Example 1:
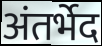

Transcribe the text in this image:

अंतर्भेद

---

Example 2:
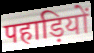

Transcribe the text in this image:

पहाड़ियों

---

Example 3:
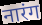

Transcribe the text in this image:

नारंग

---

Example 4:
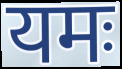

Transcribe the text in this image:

यमः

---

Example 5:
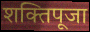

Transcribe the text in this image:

शक्तिपूजा